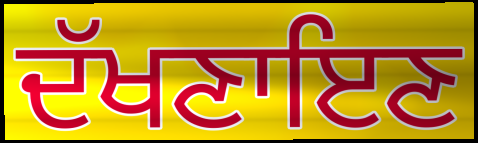
ਦੱਖਣਾਇਣ